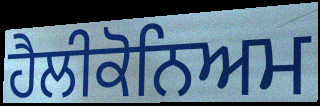
ਹੈਲੀਕੋਨਿਅਮ